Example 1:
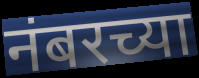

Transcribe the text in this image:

नंबरच्या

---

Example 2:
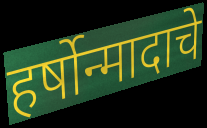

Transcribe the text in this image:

हर्षोन्मादाचे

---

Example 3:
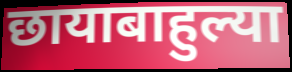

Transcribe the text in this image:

छायाबाहुल्या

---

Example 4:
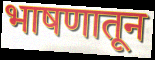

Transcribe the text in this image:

भाषणातून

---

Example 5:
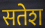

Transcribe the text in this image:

सतेश